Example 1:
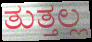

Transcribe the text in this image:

ತುತ್ತಲ್ಲ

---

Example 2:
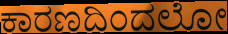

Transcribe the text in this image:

ಕಾರಣದಿಂದಲೋ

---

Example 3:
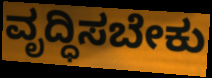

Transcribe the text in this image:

ವೃದ್ಧಿಸಬೇಕು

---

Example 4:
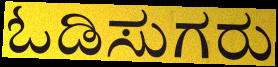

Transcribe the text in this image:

ಓಡಿಸುಗರು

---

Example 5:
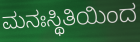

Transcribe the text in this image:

ಮನಃಸ್ಥಿತಿಯಿಂದ